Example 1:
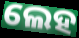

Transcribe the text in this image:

ଲେହ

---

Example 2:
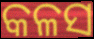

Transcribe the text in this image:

କଳସ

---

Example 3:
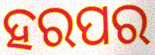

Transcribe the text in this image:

ହରପର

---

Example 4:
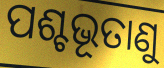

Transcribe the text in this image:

ପଶ୍ଚଭୂତାଣୁ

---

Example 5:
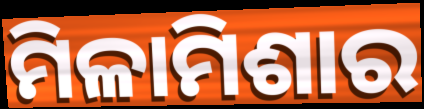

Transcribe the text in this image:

ମିଳାମିଶାର